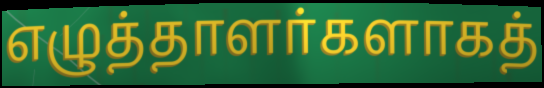
எழுத்தாளர்களாகத்